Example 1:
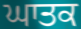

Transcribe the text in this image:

ਘਾਤਕ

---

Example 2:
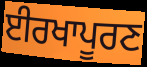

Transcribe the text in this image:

ਈਰਖਾਪੂਰਣ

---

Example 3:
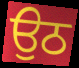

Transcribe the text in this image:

ਉਠ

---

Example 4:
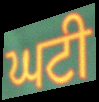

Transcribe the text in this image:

ਘਟੀ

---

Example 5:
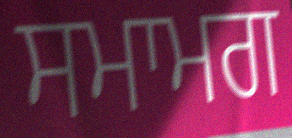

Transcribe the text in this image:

ਸਮਾਮਗ